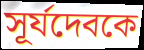
সূর্যদেবকে